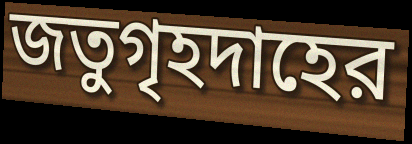
জতুগৃহদাহের